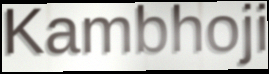
Kambhoji